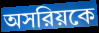
অসরিয়কে